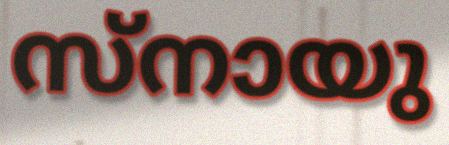
സ്നായു